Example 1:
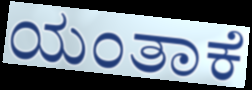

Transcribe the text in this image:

ಯಂತಾಕೆ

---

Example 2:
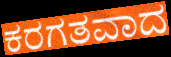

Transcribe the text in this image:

ಕರಗತವಾದ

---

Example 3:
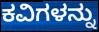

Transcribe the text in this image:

ಕವಿಗಳನ್ನು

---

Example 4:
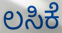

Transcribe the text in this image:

ಲಸಿಕೆ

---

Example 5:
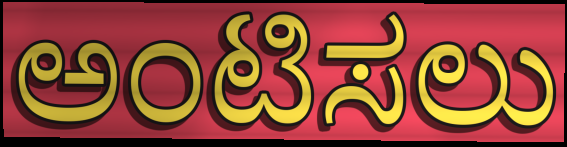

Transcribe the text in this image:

ಅಂಟಿಸಲು